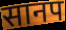
सानप